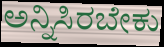
ಅನ್ನಿಸಿರಬೇಕು